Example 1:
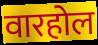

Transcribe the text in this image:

वारहोल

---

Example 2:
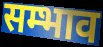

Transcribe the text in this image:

सम्भाव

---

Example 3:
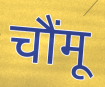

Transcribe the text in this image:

चौंमू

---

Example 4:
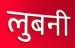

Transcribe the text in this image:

लुबनी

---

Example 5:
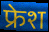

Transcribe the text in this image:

फ्रेश